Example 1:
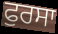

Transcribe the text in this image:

ਫੁਰਸਾ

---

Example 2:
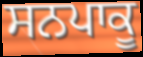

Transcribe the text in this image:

ਸਨਪਾਕੂ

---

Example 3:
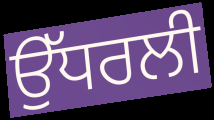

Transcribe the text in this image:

ਉੱਧਰਲੀ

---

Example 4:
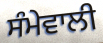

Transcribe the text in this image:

ਸੰਮੇਵਾਲੀ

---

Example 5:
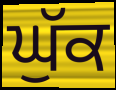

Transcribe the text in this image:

ਘੁੱਕ